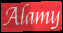
Alamy